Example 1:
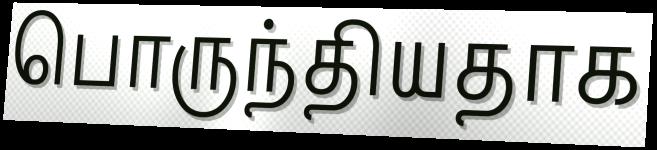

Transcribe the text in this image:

பொருந்தியதாக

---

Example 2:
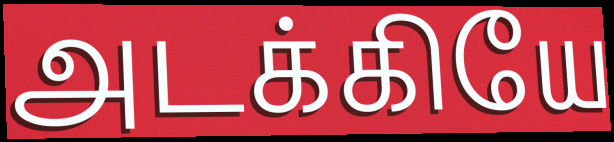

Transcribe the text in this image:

அடக்கியே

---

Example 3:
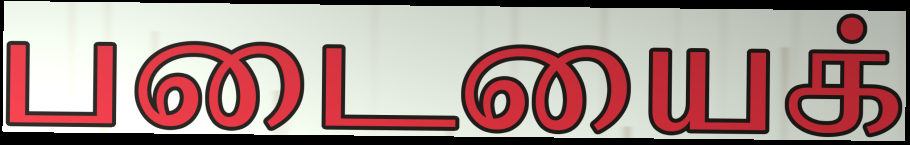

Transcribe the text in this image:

படையைக்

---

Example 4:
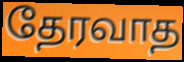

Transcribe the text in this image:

தேரவாத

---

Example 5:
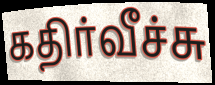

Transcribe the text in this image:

கதிர்வீச்சு